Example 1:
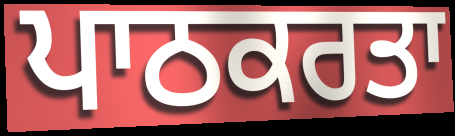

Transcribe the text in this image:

ਪਾਠਕਰਤਾ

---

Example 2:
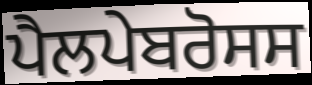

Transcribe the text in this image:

ਪੈਲਪੇਬਰੋਸਸ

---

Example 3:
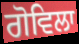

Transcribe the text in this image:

ਗੋਵਿਲਾ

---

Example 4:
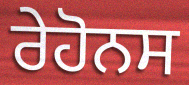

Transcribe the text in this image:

ਰੇਹੋਨਸ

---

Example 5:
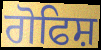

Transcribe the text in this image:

ਗੋਫਿਸ਼